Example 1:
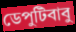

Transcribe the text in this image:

ডেপুটিবাবু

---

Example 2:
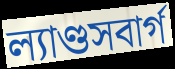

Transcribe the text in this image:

ল্যাণ্ডসবার্গ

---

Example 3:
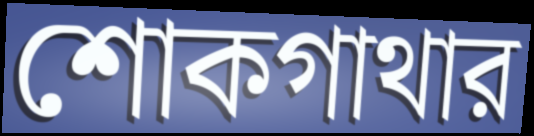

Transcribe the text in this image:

শোকগাথার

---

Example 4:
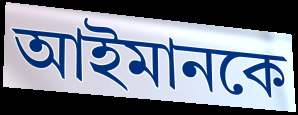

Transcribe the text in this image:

আইমানকে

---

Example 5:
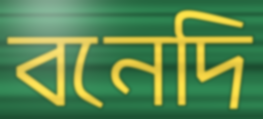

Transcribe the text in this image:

বনেদি